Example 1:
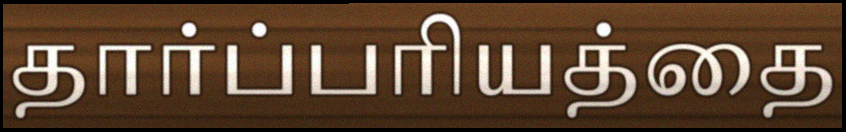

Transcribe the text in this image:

தார்ப்பரியத்தை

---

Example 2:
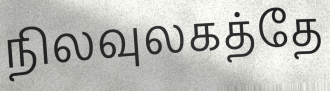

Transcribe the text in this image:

நிலவுலகத்தே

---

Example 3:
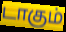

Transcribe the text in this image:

டாகும்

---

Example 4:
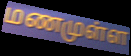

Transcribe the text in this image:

மணமுள்ள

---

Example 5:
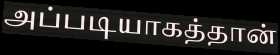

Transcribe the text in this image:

அப்படியாகத்தான்